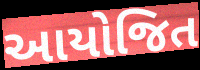
આયોજિત